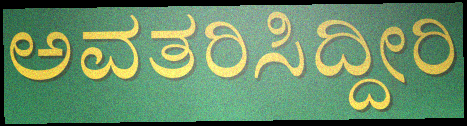
ಅವತರಿಸಿದ್ದೀರಿ